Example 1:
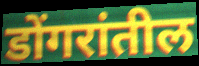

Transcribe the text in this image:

डोंगरांतील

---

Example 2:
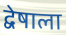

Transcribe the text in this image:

द्वेषाला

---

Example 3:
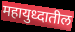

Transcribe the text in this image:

महायुध्दातील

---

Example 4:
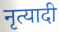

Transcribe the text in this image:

नृत्यादी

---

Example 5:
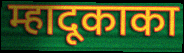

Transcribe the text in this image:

म्हादूकाका